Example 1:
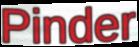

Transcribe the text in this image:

Pinder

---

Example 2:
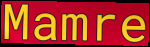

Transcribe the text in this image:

Mamre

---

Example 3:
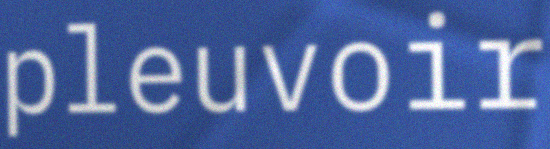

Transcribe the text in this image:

pleuvoir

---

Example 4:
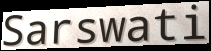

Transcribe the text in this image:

Sarswati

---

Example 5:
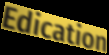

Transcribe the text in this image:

Edication